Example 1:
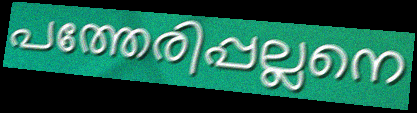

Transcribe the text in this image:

പത്തേരിപ്പല്ലനെ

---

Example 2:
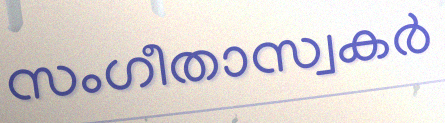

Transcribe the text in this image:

സംഗീതാസ്വകർ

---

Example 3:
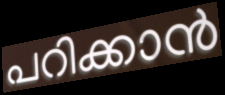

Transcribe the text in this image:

പറിക്കാൻ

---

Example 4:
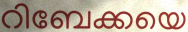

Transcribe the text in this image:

റിബേക്കയെ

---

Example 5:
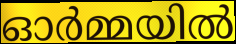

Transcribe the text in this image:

ഓർമ്മയിൽ